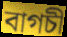
বাগচী